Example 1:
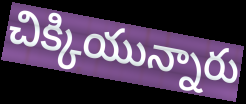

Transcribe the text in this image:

చిక్కియున్నారు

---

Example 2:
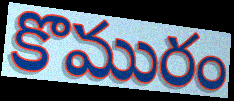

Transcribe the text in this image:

కొమురం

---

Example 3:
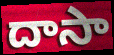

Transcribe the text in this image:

దాసా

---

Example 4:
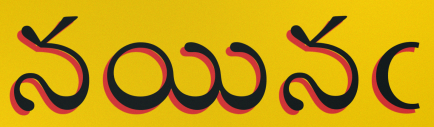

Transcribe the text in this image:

నయినఁ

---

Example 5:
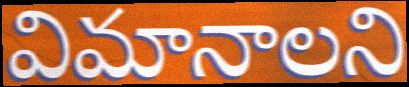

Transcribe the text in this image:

విమానాలని